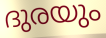
ദുരയും